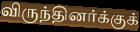
விருந்தினர்க்குக்